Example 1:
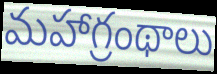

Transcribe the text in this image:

మహాగ్రంథాలు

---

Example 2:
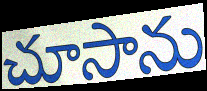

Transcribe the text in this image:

చూసాను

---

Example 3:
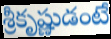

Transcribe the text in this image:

శ్రీకృష్ణుడంటే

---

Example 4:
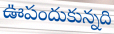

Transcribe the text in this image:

ఊపందుకున్నది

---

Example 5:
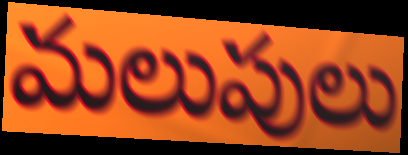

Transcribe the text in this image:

మలుపులు